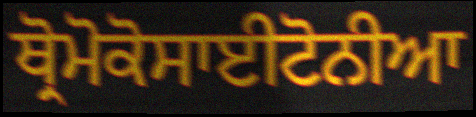
ਥ੍ਰੋਮੋਕੋਸਾਈਟੋਨੀਆ